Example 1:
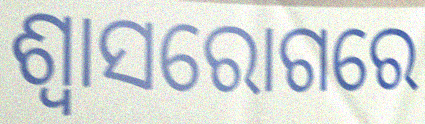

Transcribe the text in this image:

ଶ୍ଵାସରୋଗରେ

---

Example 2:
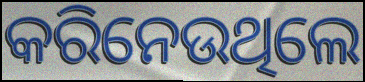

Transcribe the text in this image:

କରିନେଉଥିଲେ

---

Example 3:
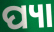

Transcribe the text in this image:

ପ୍ୟା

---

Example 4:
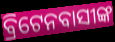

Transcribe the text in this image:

ବ୍ରିଟେନବାସୀଙ୍କ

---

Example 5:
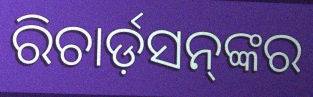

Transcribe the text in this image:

ରିଚାର୍ଡ଼ସନ୍‌ଙ୍କର